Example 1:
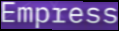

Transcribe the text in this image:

Empress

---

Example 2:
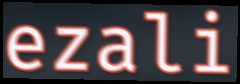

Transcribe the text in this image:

ezali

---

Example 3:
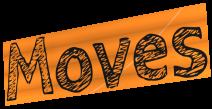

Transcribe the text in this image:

Moves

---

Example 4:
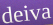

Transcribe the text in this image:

deiva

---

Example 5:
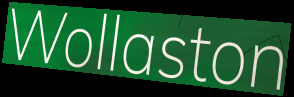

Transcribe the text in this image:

Wollaston